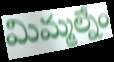
మిమ్మల్నేం